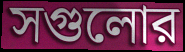
সগুলোর